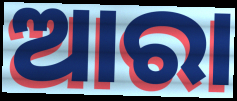
ଆରା